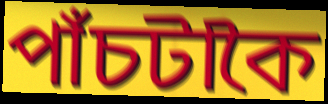
পাঁচটাকৈ